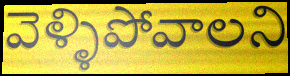
వెళ్ళిపోవాలని